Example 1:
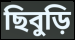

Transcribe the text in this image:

ছিবুড়ি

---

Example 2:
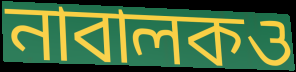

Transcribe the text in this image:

নাবালকও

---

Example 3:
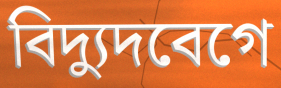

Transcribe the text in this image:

বিদ্যুদবেগে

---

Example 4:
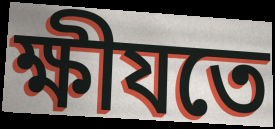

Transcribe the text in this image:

ক্ষীযতে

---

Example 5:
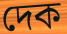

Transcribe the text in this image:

দেক